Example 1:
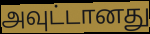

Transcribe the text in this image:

அவுட்டானது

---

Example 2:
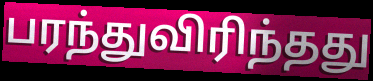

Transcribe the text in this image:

பரந்துவிரிந்தது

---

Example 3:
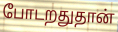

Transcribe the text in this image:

போடறதுதான்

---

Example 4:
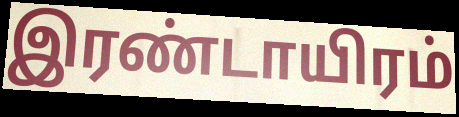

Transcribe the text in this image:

இரண்டாயிரம்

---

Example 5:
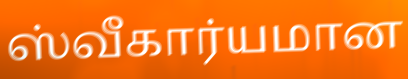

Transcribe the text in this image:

ஸ்வீகார்யமான